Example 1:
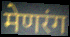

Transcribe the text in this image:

मेणरंग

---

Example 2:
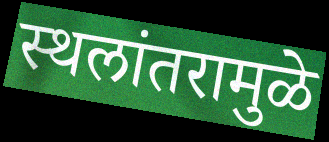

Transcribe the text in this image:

स्थलांतरामुळे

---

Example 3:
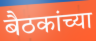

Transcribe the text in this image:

बैठकांच्या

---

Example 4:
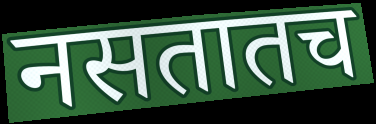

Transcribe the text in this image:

नसतातच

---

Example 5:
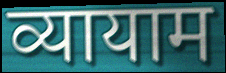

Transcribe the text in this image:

व्यायाम